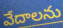
వేదాలను